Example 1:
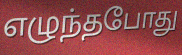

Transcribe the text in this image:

எழுந்தபோது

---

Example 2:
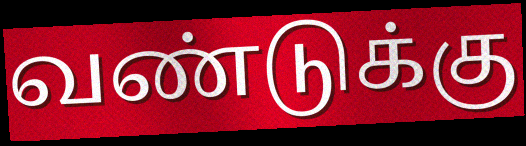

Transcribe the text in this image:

வண்டுக்கு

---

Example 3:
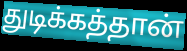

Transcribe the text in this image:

துடிக்கத்தான்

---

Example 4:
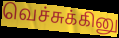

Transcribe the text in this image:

வெச்சுக்கினு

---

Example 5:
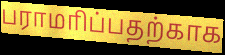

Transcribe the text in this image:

பராமரிப்பதற்காக